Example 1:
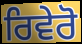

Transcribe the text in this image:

ਰਿਵੇਰੋ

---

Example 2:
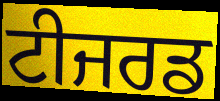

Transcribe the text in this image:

ਟੀਜਰਡ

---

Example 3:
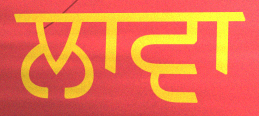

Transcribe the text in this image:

ਲਾਵਾ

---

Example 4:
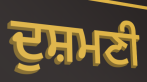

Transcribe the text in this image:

ਦੁਸ਼ਮਣੀ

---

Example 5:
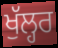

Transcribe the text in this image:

ਖੁੱਲ੍ਹਰ